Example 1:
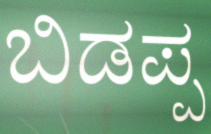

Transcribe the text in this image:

ಬಿಡಪ್ಪ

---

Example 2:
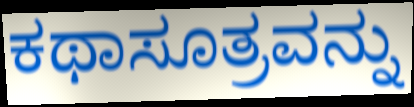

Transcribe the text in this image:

ಕಥಾಸೂತ್ರವನ್ನು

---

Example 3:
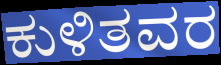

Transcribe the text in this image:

ಕುಳಿತವರ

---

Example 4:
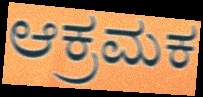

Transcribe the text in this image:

ಆಕ್ರಮಕ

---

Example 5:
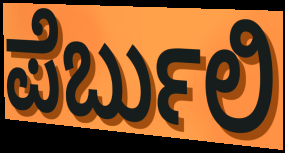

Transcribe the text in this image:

ಪೆರ್ಬುಲಿ